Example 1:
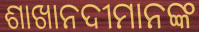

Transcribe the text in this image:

ଶାଖାନଦୀମାନଙ୍କ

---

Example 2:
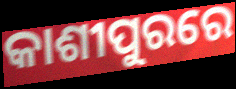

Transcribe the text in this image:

କାଶୀପୁରରେ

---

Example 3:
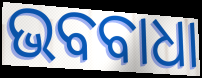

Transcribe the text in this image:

ଭବବାଧା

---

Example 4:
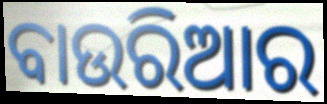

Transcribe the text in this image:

ବାଉରିଆର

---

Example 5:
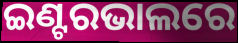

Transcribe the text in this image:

ଇଣ୍ଟରଭାଲରେ